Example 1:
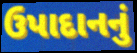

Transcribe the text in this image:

ઉપાદાનનું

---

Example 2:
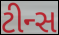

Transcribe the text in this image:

ટીન્સ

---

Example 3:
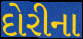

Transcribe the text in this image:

દોરીના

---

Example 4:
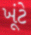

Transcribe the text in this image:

ખૂંટે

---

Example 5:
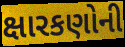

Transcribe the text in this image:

ક્ષારકણોની